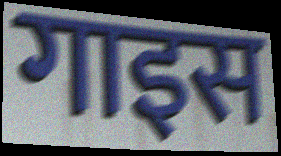
गाइस